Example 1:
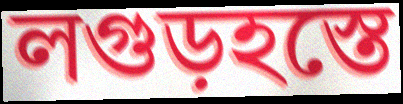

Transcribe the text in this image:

লগুড়হস্তে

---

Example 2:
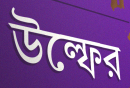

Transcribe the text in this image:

উল্ফের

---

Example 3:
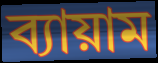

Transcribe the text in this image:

ব্যায়াম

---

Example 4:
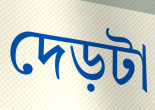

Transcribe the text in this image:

দেড়টা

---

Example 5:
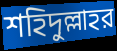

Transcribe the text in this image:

শহিদুল্লাহর